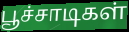
பூச்சாடிகள்